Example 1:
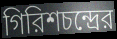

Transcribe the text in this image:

গিরিশচন্দ্রের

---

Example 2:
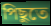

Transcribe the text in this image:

পিছুতে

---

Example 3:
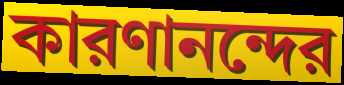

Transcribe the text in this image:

কারণানন্দের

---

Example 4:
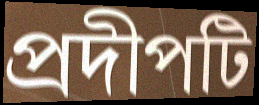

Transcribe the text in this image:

প্রদীপটি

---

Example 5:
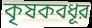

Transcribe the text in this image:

কৃষকবধূর